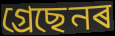
গ্ৰেছেনৰ